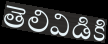
తెలివిడికి